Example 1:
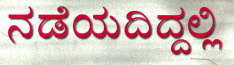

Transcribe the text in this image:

ನಡೆಯದಿದ್ದಲ್ಲಿ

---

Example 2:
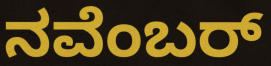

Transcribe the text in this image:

ನವೆಂಬರ್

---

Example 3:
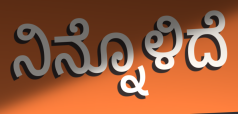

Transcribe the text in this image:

ನಿನ್ನೊಳಿದೆ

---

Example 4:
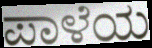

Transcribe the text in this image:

ಪಾಳೆಯ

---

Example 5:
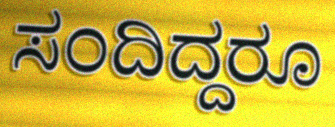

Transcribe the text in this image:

ಸಂದಿದ್ದರೂ